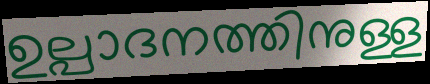
ഉല്പാദനത്തിനുള്ള